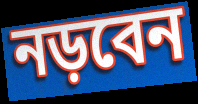
নড়বেন